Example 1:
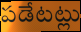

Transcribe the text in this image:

పడేటట్లు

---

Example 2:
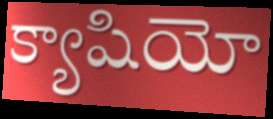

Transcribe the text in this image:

క్యాషియో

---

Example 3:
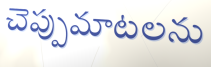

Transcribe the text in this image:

చెప్పుమాటలను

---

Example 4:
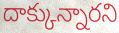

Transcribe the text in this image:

దాక్కున్నారని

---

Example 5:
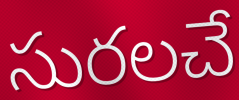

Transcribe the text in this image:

సురలచే